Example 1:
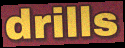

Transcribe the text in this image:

drills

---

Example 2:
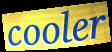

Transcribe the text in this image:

cooler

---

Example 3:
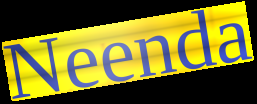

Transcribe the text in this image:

Neenda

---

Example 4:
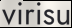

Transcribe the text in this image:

virisu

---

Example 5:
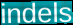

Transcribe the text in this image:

indels